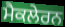
ਮੈਕਲੇਰਨ